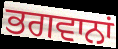
ਭਗਵਾਨਾਂ